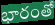
భారంతో